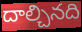
దాల్చినది